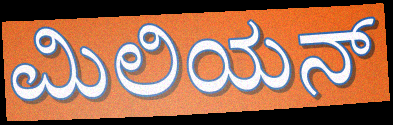
ಮಿಲಿಯನ್